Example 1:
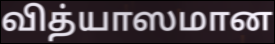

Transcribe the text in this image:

வித்யாஸமான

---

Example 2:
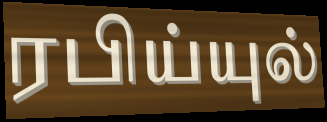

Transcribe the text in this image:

ரபிய்யுல்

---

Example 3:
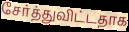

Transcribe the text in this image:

சேர்த்துவிட்டதாக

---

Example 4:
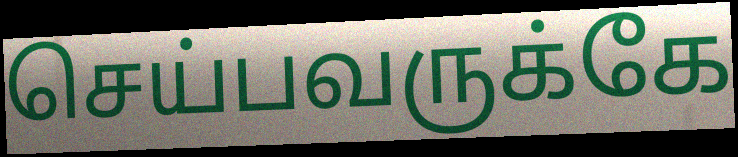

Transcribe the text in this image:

செய்பவருக்கே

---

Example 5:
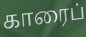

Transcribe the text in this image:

காரைப்